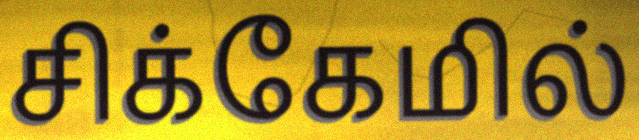
சிக்கேமில்